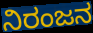
ನಿರಂಜನ